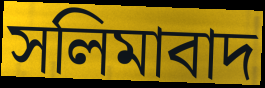
সলিমাবাদ